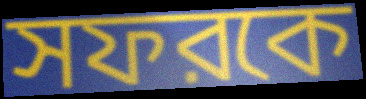
সফরকে